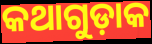
କଥାଗୁଡ଼ାକ